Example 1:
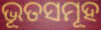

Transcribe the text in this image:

ଭୂତସମୂହ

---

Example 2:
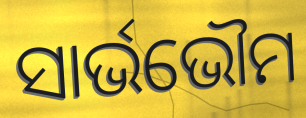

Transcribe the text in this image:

ସାର୍ଭଭୌମ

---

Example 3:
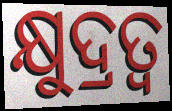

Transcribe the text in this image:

କ୍ଷୁଦ୍ରତ୍ୱ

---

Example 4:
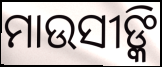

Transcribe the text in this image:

ମାଉସୀଙ୍କି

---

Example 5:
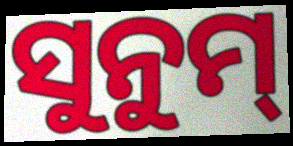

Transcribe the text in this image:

ସୁନୁମ୍